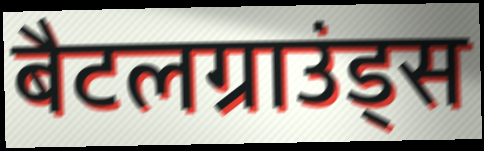
बैटलग्राउंड्स